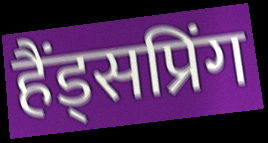
हैंड्सप्रिंग